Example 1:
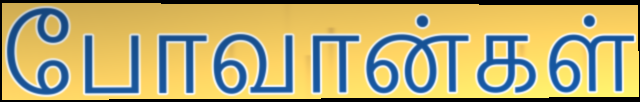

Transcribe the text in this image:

போவான்கள்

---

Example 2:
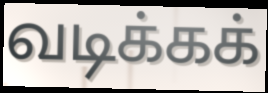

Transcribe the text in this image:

வடிக்கக்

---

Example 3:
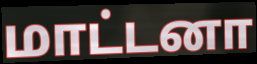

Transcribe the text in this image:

மாட்டனா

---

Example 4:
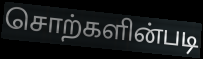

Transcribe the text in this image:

சொற்களின்படி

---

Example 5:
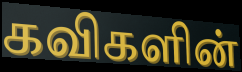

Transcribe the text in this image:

கவிகளின்